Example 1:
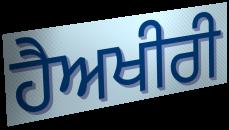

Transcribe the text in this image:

ਹੈਅਖੀਰੀ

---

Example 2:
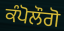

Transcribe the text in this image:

ਕੰਪੋਲੌਗੋ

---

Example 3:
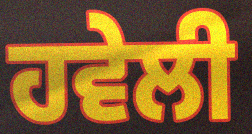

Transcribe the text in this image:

ਹਵੇਲੀ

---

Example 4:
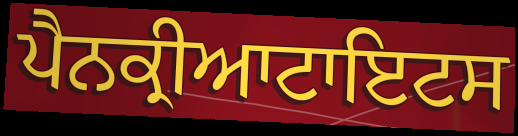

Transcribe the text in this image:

ਪੈਨਕ੍ਰੀਆਟਾਇਟਸ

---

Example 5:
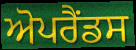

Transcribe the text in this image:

ਅੋਪਰੈਂਡਸ